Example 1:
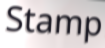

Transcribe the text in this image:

Stamp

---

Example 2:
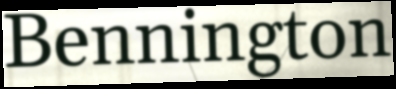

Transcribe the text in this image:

Bennington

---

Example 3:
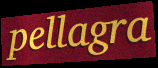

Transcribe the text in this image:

pellagra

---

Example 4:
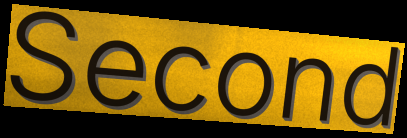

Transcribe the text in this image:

Second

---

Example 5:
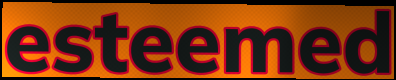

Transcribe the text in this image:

esteemed